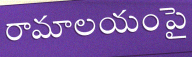
రామాలయంపై